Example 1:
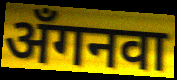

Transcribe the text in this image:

अँगनवा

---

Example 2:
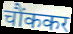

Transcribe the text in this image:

चौंककर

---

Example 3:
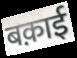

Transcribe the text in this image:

बक़ाई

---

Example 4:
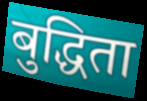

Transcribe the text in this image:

बुद्धिता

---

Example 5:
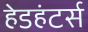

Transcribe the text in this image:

हेडहंटर्स